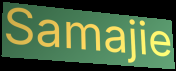
Samajie